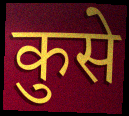
कुसे